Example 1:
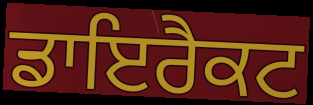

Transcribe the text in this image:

ਡਾਇਰੈਕਟ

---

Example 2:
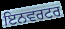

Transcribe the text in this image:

ਇਨਵਰਟਰ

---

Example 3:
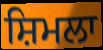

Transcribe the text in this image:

ਸ਼ਿਮਲਾ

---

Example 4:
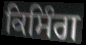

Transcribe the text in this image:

ਕਿਸਿੰਗ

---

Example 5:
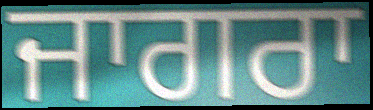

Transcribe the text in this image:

ਜਾਗਰਾ